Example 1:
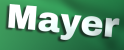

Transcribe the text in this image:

Mayer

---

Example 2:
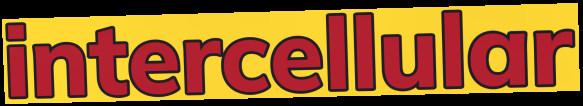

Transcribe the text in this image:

intercellular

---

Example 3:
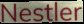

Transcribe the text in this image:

Nestler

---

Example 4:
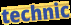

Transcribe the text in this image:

technic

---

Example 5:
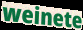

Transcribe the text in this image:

weinete